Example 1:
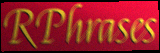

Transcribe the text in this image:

RPhrases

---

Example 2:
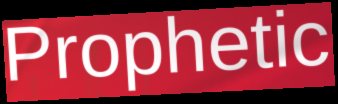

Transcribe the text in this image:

Prophetic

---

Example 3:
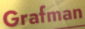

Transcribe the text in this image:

Grafman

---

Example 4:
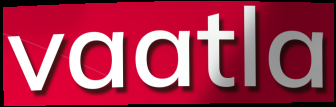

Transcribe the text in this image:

vaatla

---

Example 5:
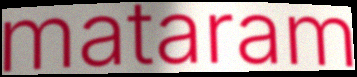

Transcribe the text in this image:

mataram